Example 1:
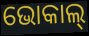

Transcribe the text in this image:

ଭୋକାଲ୍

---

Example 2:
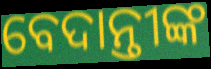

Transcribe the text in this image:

ବେଦାନ୍ତୀଙ୍କ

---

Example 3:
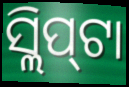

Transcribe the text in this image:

ସ୍ଲିପ୍‌ଟା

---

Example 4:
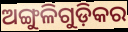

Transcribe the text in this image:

ଅଙ୍ଗୁଳିଗୁଡ଼ିକର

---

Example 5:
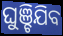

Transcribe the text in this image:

ଘୁଞ୍ଚିଯିବ